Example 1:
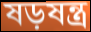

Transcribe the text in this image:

ষড়ষন্ত্র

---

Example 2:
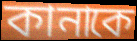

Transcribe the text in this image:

কানাকে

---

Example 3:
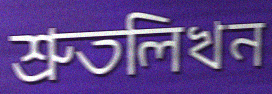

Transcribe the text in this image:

শ্রুতলিখন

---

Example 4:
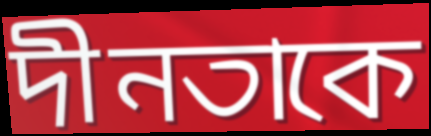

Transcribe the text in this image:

দীনতাকে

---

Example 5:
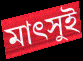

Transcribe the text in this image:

মাৎসুই